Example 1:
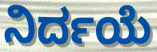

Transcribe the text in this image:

ನಿರ್ದಯೆ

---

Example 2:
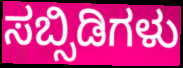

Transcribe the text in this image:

ಸಬ್ಸಿಡಿಗಳು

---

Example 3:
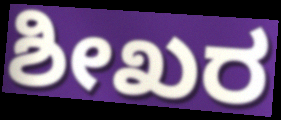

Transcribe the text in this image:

ಶೀಖರ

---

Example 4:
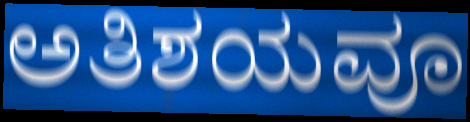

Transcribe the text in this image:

ಅತಿಶಯವೂ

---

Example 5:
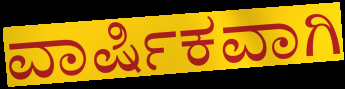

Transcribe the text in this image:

ವಾರ್ಷಿಕವಾಗಿ